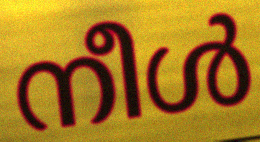
നീൾ